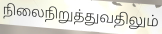
நிலைநிறுத்துவதிலும்